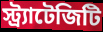
স্ট্র্যাটেজিটি